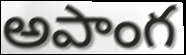
అపాంగ